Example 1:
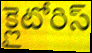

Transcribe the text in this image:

క్లైటోరిస్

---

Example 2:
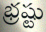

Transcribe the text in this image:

భ్రష్టు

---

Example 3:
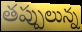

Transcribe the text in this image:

తప్పులున్న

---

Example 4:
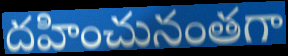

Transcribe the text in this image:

దహించునంతగా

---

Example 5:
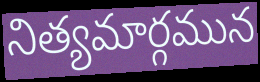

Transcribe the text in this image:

నిత్యమార్గమున